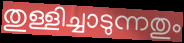
തുള്ളിച്ചാടുന്നതും